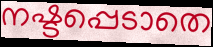
നഷ്ടപ്പെടാതെ